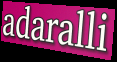
adaralli